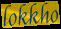
lokkho